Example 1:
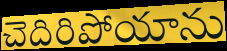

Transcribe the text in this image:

చెదిరిపోయాను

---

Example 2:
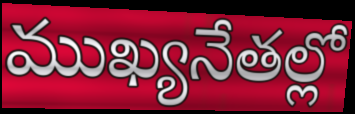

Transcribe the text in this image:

ముఖ్యనేతల్లో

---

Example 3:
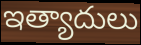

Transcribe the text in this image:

ఇత్యాదులు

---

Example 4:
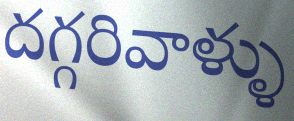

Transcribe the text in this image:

దగ్గరివాళ్ళు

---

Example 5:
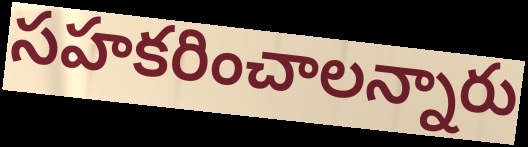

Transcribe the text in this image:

సహకరించాలన్నారు